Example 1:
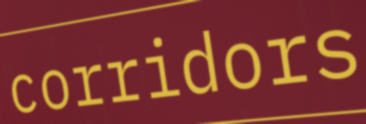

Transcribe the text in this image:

corridors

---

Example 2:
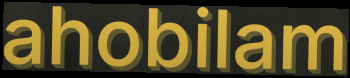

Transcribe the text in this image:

ahobilam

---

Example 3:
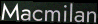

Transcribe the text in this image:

Macmilan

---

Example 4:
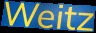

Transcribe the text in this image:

Weitz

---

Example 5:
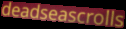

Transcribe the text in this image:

deadseascrolls